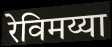
रेविमय्या